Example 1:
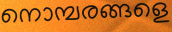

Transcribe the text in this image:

നൊമ്പരങ്ങളെ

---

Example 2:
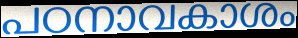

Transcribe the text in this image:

പഠനാവകാശം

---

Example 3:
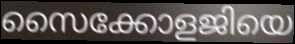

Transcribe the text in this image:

സൈക്കോളജിയെ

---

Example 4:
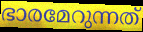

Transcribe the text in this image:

ഭാരമേറുന്നത്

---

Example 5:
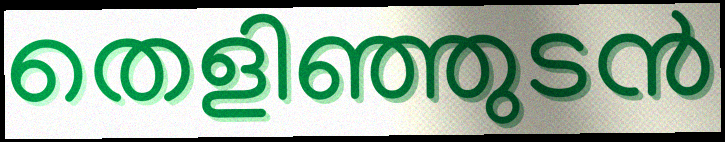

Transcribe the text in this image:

തെളിഞ്ഞുടൻ